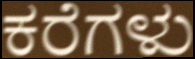
ಕರೆಗಳು